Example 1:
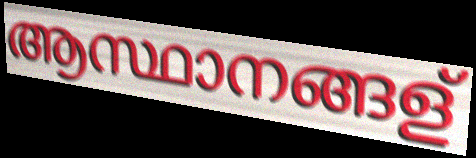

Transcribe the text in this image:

ആസ്ഥാനങ്ങള്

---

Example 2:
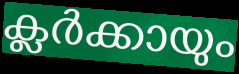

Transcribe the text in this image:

ക്ലർക്കായും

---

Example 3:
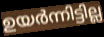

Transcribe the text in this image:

ഉയർന്നിട്ടില്ല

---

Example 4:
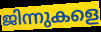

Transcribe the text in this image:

ജിന്നുകളെ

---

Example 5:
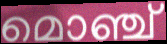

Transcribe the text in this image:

മൊഞ്ച്